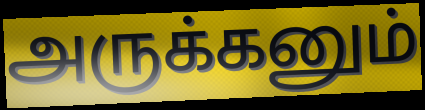
அருக்கனும்